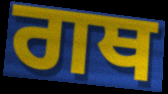
ਗਥ